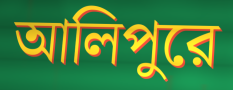
আলিপুরে